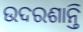
ଉଦରଶାନ୍ତି